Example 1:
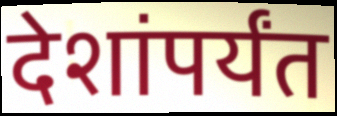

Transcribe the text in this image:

देशांपर्यंत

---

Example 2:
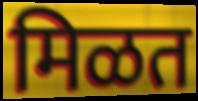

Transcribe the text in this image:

मिळत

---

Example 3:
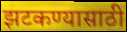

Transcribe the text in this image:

झटकण्यासाठी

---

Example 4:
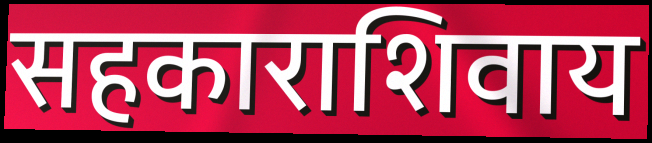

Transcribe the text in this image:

सहकाराशिवाय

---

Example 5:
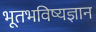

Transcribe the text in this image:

भूतभविष्यज्ञान